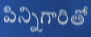
పిన్నిగారితో